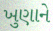
ખુણાને